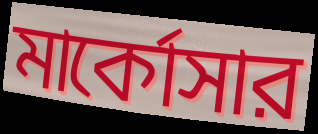
মার্কোসার